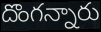
దొంగన్నారు